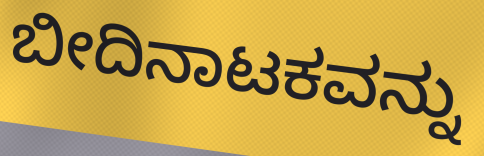
ಬೀದಿನಾಟಕವನ್ನು